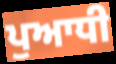
ਪੁਆਧੀ